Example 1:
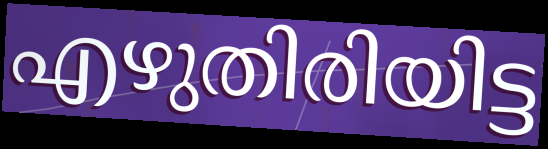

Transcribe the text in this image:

എഴുതിരിയിട്ട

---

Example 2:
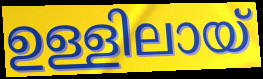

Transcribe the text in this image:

ഉള്ളിലായ്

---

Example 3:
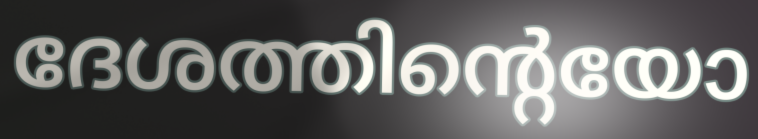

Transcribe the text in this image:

ദേശത്തിന്റെയോ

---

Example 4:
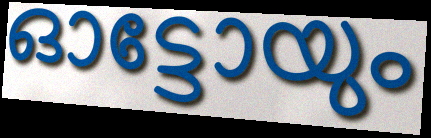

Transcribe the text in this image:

ഓട്ടോയും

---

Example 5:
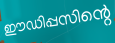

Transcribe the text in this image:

ഈഡിപ്പസിന്റെ